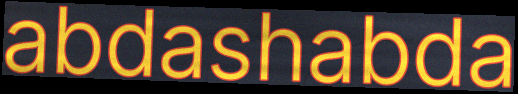
abdashabda